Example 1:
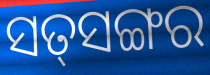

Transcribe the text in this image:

ସତ୍‌ସଙ୍ଗର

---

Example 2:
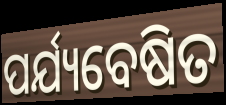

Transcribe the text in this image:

ପର୍ଯ୍ୟବେଷିତ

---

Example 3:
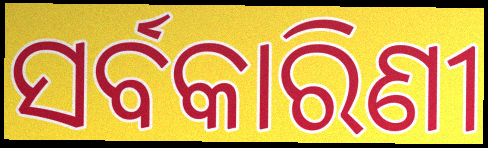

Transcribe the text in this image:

ସର୍ବକାରିଣୀ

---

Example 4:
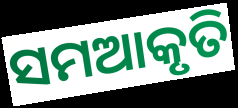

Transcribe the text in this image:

ସମଆକୃତି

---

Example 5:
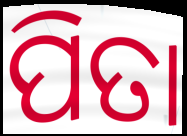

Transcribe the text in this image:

ପିତା